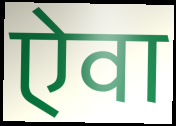
ऐवा